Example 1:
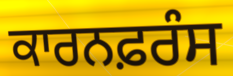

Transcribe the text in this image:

ਕਾਰਨਫ਼ਰੰਸ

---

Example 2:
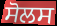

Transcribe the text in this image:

ਸੋਲਸ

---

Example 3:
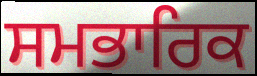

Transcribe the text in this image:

ਸਮਭਾਰਿਕ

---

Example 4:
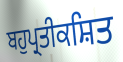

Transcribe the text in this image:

ਬਹੁਪ੍ਰਤੀਕਸ਼ਿਤ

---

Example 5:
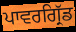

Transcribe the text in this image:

ਪਾਵਰਗ੍ਰਿੱਡ